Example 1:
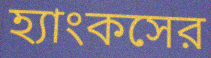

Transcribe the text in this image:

হ্যাংকসের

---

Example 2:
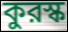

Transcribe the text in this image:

কুরস্ক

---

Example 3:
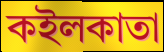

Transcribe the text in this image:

কইলকাতা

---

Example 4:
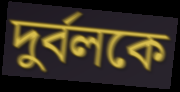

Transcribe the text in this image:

দুর্বলকে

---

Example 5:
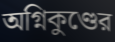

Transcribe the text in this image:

অগ্নিকুণ্ডের